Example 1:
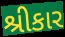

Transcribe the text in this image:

શ્રીકાર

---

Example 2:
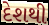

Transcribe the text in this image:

દેશથી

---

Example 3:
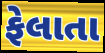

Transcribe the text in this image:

ફેલાતા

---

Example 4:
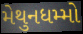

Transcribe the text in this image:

મેથુનધમ્મો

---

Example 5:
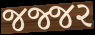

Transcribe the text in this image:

જજ્જર